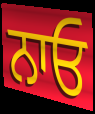
ਨਾਓ